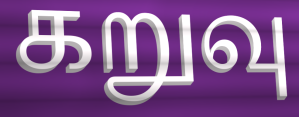
கறுவு